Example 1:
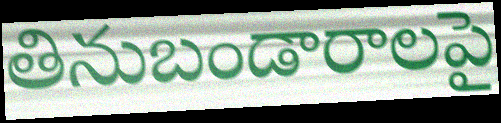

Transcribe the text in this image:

తినుబండారాలపై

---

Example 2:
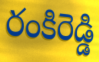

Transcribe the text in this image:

రంకిరెడ్డి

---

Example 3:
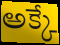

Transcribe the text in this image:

అక్కే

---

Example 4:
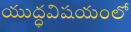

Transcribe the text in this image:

యుద్ధవిషయంలో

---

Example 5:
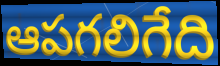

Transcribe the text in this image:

ఆపగలిగేది